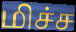
மிச்ச